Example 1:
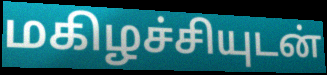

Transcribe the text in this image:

மகிழச்சியுடன்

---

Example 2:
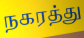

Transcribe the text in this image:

நகரத்து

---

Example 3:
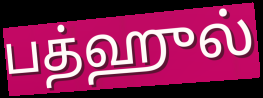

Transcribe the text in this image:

பத்ஹுல்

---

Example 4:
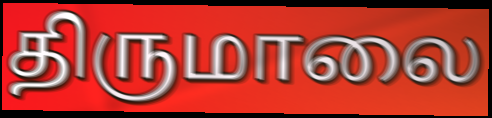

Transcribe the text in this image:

திருமாலை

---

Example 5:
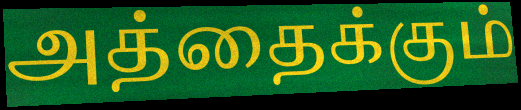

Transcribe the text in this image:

அத்தைக்கும்